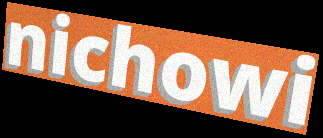
nichowi